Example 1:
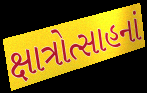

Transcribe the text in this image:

ક્ષાત્રોત્સાહનાં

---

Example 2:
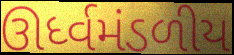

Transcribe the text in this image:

ઊર્ધ્વમંડળીય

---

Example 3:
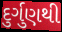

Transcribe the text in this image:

દુર્ગુણથી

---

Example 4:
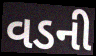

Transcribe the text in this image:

વડની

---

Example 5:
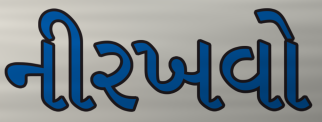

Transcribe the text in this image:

નીરખવો